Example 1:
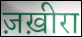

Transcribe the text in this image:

ज़ख़ीरा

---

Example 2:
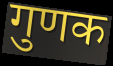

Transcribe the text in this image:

गुणक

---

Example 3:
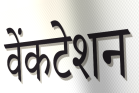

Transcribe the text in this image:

वेंकटेशन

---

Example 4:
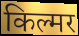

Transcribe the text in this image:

किल्मर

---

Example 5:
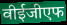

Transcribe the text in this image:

वीईजीएफ